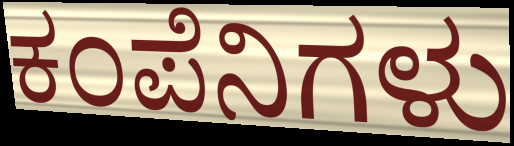
ಕಂಪೆನಿಗಳು